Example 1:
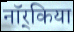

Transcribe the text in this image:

नॉर्किया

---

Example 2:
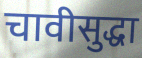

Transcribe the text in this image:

चावीसुद्धा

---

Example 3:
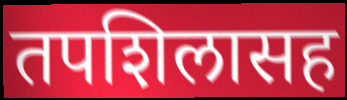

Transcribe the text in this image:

तपशिलासह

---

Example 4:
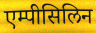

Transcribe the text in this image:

एम्पीसिलिन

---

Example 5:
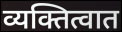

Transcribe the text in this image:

व्यक्तित्वात